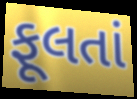
ફૂલતાં